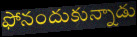
ఫోనందుకున్నాడు